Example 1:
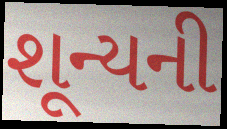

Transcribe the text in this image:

શૂન્યની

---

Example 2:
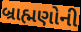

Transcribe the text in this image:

બ્રાહ્મણોની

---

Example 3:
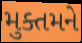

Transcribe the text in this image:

મુક્તમને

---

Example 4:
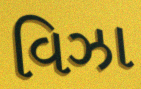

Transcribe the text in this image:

વિઝા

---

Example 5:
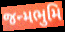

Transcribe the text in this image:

જન્મભુમિ